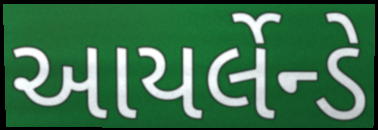
આયર્લેન્ડે